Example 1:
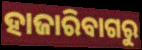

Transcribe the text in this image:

ହାଜାରିବାଗରୁ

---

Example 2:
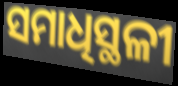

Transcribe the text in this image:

ସମାଧିସ୍ଥଳୀ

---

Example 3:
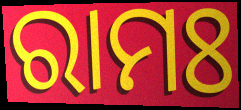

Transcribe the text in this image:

ରାମଃ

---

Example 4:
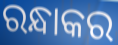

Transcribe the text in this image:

ରନ୍ଧାକର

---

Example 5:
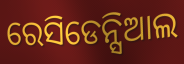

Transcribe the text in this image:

ରେସିଡେନ୍ସିଆଲ